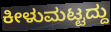
ಕೀಳುಮಟ್ಟದ್ದು